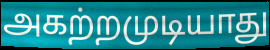
அகற்றமுடியாது